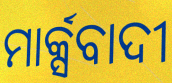
ମାର୍କ୍ସବାଦୀ